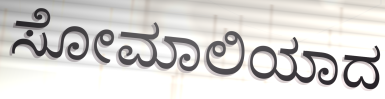
ಸೋಮಾಲಿಯಾದ